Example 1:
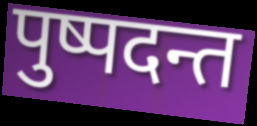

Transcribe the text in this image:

पुष्पदन्त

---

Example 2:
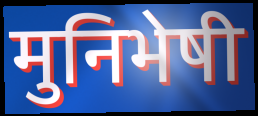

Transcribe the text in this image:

मुनिभेषी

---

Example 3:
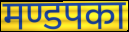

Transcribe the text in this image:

मण्डपका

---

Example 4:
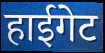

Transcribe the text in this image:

हाईगेट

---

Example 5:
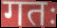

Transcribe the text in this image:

गतः